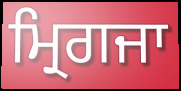
ਮ੍ਰਿਗਜਾ